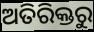
ଅତିରିକ୍ତରୁ